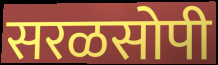
सरळसोपी